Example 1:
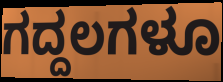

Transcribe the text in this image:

ಗದ್ದಲಗಳೂ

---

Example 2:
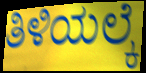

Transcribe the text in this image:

ತಿಳಿಯಲ್ಕೆ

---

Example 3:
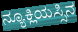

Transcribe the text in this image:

ನ್ಯೂಕ್ಲಿಯಸ್ಸಿನ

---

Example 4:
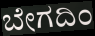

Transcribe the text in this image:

ಬೇಗದಿಂ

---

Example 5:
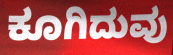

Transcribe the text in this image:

ಕೂಗಿದುವು